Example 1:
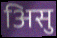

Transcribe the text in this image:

अिसु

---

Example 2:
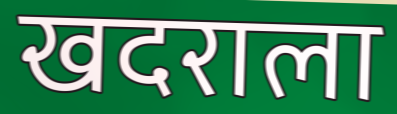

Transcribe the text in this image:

खदराला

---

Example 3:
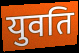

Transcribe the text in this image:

युवति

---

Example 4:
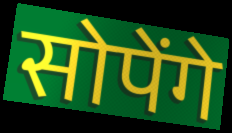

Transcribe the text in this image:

सोपेंगे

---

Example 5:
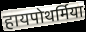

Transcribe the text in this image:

हायपोथर्मिया